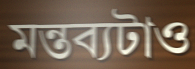
মন্তব্যটাও